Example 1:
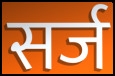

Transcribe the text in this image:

सर्ज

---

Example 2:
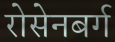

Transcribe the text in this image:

रोसेनबर्ग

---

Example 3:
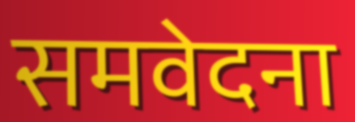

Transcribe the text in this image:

समवेदना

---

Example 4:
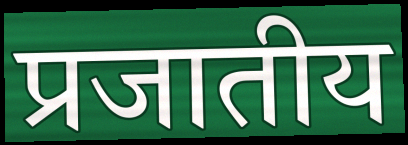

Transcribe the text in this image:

प्रजातीय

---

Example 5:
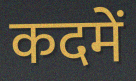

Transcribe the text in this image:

कदमें